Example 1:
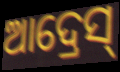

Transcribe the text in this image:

ଆଦ୍ରେସ୍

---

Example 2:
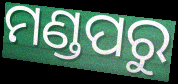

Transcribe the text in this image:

ମଣ୍ଡପରୁ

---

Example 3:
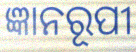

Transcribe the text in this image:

ଜ୍ଞାନରୂପୀ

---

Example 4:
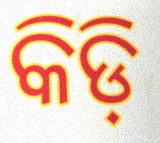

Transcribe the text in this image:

କିଡ଼ି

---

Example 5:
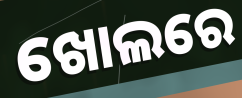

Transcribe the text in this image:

ଖୋଲରେ